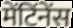
मेंटिंनेंस